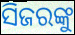
ସିଜରଙ୍କୁ